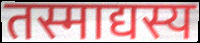
तस्माद्यस्य